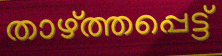
താഴ്ത്തപ്പെട്ട്